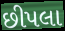
છીપલા